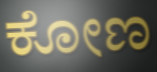
ಕೋಣ